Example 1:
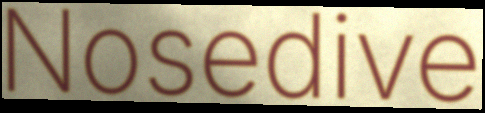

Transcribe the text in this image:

Nosedive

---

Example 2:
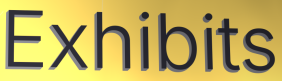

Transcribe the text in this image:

Exhibits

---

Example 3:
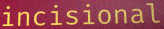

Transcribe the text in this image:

incisional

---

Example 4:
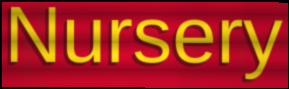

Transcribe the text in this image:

Nursery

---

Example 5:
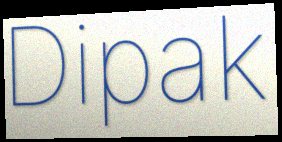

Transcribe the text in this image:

Dipak